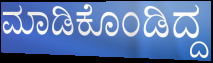
ಮಾಡಿಕೊಂಡಿದ್ದ